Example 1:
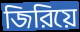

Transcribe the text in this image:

জিরিয়ে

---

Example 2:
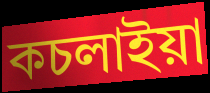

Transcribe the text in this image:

কচলাইয়া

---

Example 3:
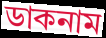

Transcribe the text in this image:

ডাকনাম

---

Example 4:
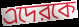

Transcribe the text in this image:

এদেরকে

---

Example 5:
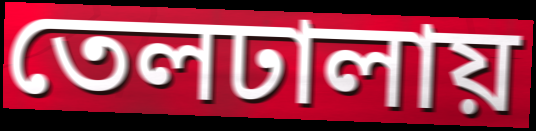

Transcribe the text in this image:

তেলঢালায়